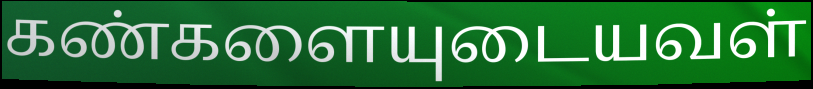
கண்களையுடையவள்